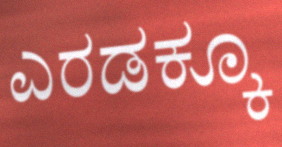
ಎರಡಕ್ಕೂ